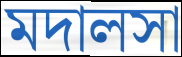
মদালসা